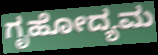
ಗೃಹೋದ್ಯಮ